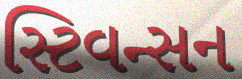
સ્ટિવન્સન